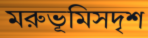
মরুভূমিসদৃশ